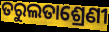
ତରୁଲତାଶ୍ରେଣୀ